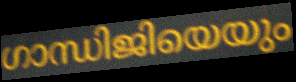
ഗാന്ധിജിയെയും